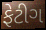
ફેટીગ